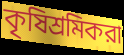
কৃষিশ্রমিকরা